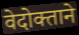
वेदोक्ताने